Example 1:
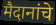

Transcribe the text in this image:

मैदानांचे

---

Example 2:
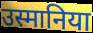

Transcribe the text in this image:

उस्मानिया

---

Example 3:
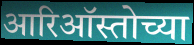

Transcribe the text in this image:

आरिऑस्तोच्या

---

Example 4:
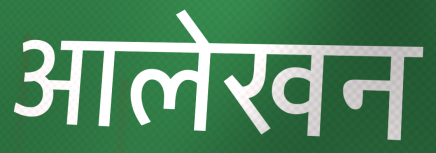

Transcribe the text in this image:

आलेखन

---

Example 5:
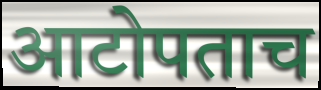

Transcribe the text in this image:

आटोपताच